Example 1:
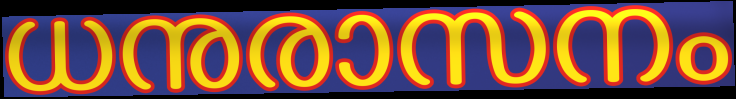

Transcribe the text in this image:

ധനുരാസനം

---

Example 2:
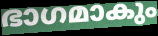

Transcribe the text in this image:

ഭാഗമാകും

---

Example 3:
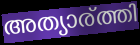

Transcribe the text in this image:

അത്യാര്ത്തി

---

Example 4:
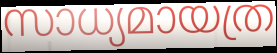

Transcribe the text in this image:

സാധ്യമായത്ര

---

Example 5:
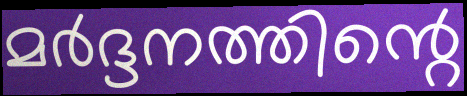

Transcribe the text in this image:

മർദ്ദനത്തിന്റെ